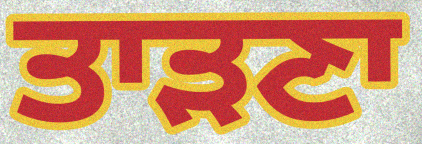
ਤਾੜਣਾ